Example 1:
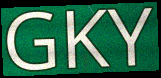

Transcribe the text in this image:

GKY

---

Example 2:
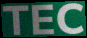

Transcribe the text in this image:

TEC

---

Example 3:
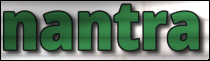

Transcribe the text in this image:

nantra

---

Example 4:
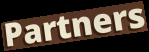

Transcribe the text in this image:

Partners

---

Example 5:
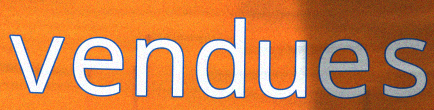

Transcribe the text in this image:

vendues